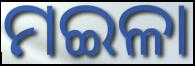
ମଇଳା